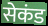
सेकंड